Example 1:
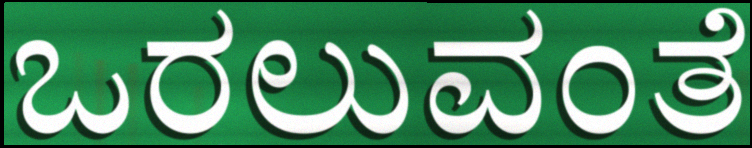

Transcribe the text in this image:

ಒರಲುವಂತೆ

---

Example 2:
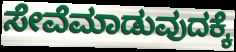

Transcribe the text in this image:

ಸೇವೆಮಾಡುವುದಕ್ಕೆ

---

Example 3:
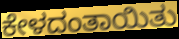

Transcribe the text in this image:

ಕೇಳದಂತಾಯಿತು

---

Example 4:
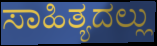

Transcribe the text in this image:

ಸಾಹಿತ್ಯದಲ್ಲು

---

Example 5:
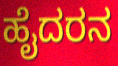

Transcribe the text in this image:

ಹೈದರನ